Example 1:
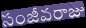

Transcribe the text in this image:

సంజీవరాజు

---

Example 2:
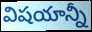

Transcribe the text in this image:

విషయాన్నీ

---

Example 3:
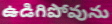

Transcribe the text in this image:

ఉడిగిపోవును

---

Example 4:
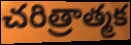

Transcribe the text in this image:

చరిత్రాత్మక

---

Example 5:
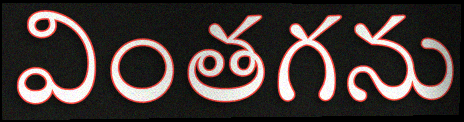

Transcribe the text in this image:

వింతగను